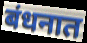
बंधनात